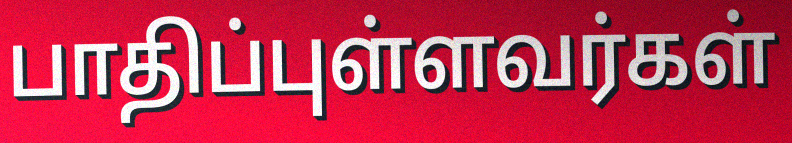
பாதிப்புள்ளவர்கள்